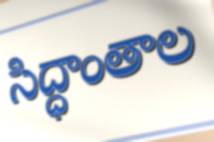
సిద్ధాంతాల